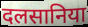
दलसानिया